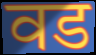
वड